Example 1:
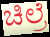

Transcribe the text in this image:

ಚಿಲ್ರೆ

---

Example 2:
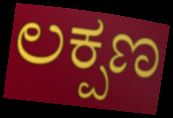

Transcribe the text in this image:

ಲಕ್ಪಣ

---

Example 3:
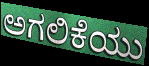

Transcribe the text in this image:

ಅಗಲಿಕೆಯು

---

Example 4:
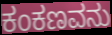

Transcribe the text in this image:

ಕಂಕಣವನು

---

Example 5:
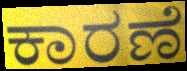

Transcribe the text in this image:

ಕಾರಣೆ